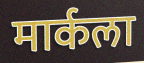
मार्कला